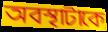
অবস্থাটাকে